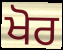
ਖੋਰ